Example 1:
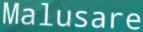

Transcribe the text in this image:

Malusare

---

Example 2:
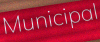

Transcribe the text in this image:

Municipal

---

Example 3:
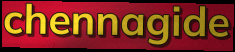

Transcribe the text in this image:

chennagide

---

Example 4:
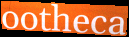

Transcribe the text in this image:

ootheca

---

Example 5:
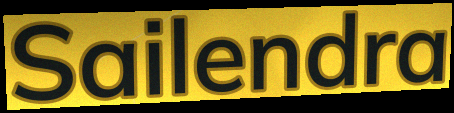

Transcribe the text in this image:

Sailendra